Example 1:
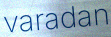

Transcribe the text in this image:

varadan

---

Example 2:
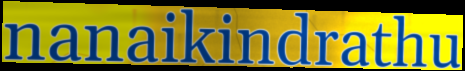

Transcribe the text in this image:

nanaikindrathu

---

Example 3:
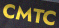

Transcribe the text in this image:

CMTC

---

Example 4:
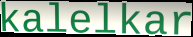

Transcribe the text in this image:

kalelkar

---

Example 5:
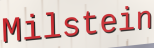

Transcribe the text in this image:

Milstein